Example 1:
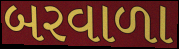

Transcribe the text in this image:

બરવાળા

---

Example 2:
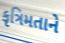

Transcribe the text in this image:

કૃત્રિમતાને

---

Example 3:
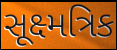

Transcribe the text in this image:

સૂક્ષ્મત્રિક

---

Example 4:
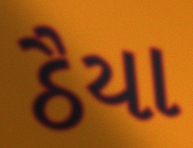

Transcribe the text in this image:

ઠૈયા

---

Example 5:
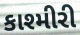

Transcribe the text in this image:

કાશ્મીરી